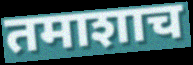
तमाशाच